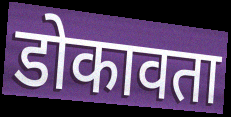
डोकावता